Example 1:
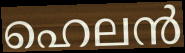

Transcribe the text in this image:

ഹെലൻ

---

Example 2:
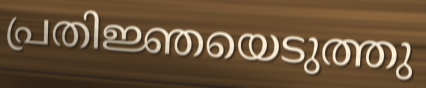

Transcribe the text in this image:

പ്രതിജ്ഞയെടുത്തു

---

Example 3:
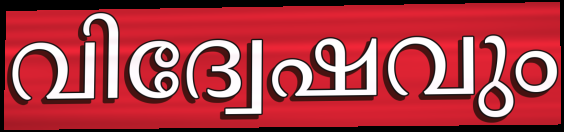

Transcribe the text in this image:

വിദ്വേഷവും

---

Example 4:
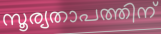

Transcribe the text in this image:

സൂര്യതാപത്തിന്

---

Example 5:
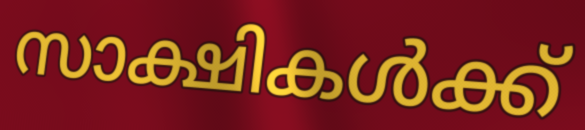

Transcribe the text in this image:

സാക്ഷികൾക്ക്